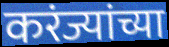
करंज्यांच्या